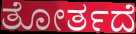
ತೋರ್ತದೆ